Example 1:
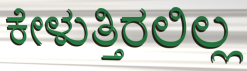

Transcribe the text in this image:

ಕೇಳುತ್ತಿರಲಿಲ್ಲ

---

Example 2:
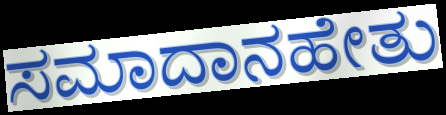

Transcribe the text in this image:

ಸಮಾದಾನಹೇತು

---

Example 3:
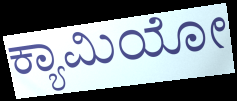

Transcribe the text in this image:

ಕ್ಯಾಮಿಯೋ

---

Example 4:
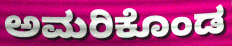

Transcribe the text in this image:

ಅಮರಿಕೊಂಡ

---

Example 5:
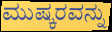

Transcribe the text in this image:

ಮುಷ್ಕರವನ್ನು